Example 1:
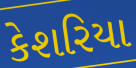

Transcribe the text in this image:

કેશરિયા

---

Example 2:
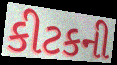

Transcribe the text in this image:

કીટકની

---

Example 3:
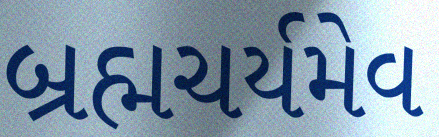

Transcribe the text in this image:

બ્રહ્મચર્યમેવ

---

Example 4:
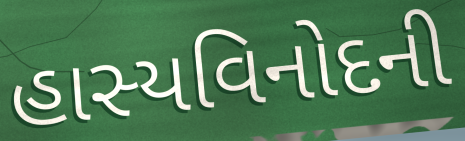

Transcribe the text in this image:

હાસ્યવિનોદની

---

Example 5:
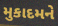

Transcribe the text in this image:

મુકાદમને